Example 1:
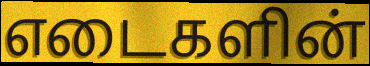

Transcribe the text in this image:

எடைகளின்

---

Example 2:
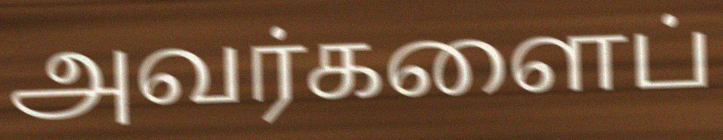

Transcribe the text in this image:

அவர்களைப்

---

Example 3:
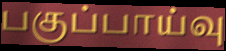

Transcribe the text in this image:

பகுப்பாய்வு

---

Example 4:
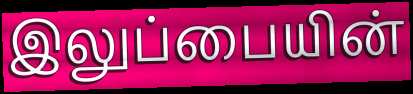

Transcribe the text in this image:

இலுப்பையின்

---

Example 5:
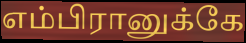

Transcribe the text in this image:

எம்பிரானுக்கே